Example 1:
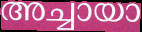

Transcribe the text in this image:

അച്ചായാ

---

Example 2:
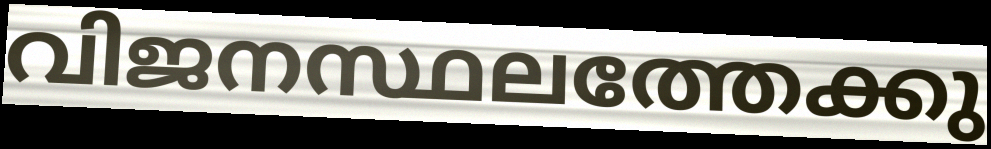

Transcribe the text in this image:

വിജനസ്ഥലത്തേക്കു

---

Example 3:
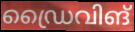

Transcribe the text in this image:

ഡ്രൈവിങ്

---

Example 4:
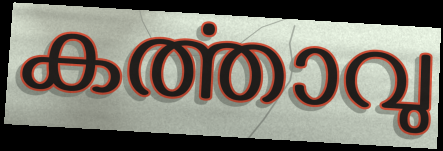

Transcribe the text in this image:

കൎത്താവു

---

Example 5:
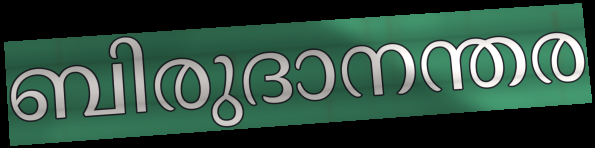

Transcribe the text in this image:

ബിരുദാനന്തര